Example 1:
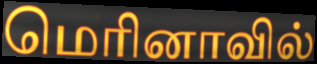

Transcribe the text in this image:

மெரினாவில்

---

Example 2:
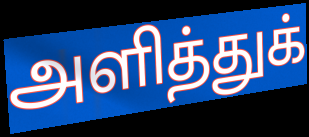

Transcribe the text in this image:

அளித்துக்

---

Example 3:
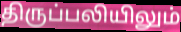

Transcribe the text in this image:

திருப்பலியிலும்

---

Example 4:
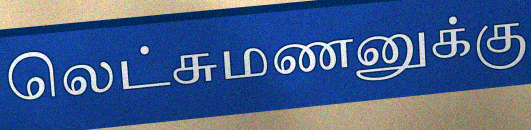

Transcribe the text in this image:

லெட்சுமணனுக்கு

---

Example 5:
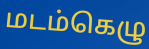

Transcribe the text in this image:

மடம்கெழு